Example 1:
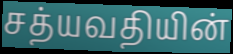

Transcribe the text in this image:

சத்யவதியின்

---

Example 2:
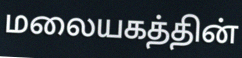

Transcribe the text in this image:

மலையகத்தின்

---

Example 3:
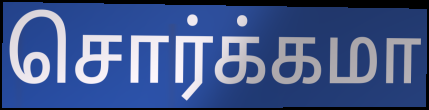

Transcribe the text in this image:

சொர்க்கமா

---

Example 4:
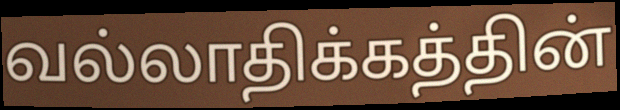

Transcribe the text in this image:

வல்லாதிக்கத்தின்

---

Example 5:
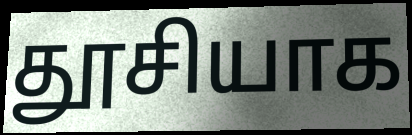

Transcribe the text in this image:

தூசியாக